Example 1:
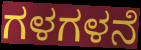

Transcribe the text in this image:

ಗಳಗಳನೆ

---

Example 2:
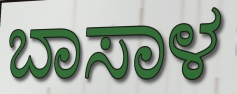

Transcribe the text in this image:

ಬಾಸಾಳ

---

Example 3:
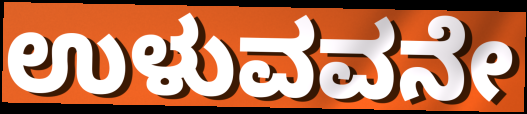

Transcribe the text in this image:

ಉಳುವವನೇ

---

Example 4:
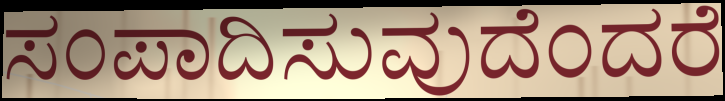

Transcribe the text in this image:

ಸಂಪಾದಿಸುವುದೆಂದರೆ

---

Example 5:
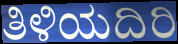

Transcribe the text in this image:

ತಿಳಿಯದಿರಿ